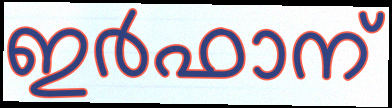
ഇർഫാന്